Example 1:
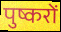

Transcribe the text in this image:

पुष्करों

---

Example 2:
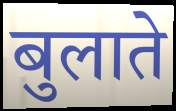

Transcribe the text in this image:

बुलाते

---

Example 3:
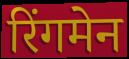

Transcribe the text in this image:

रिंगमेन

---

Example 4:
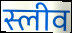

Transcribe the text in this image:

स्लीव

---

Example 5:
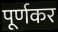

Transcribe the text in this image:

पूर्णकर